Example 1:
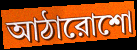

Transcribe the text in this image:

আঠারোশো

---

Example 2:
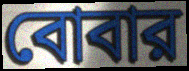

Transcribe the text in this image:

বোবার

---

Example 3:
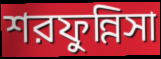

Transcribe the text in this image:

শরফুন্নিসা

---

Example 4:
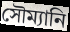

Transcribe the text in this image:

সৌম্যানি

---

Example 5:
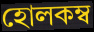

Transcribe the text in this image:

হোলকম্ব